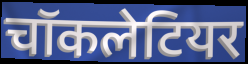
चॉकलेटियर